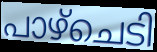
പാഴ്ചെടി